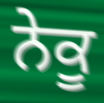
ਨੇਕੂ